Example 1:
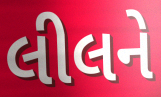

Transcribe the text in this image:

લીલને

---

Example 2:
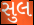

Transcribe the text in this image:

સુલ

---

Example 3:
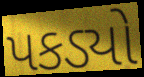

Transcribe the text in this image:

પકડ્યો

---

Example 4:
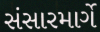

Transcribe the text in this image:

સંસારમાર્ગે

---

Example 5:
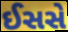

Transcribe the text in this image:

ઈસસે